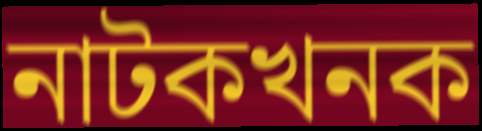
নাটকখনক